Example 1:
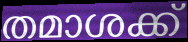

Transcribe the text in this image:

തമാശക്ക്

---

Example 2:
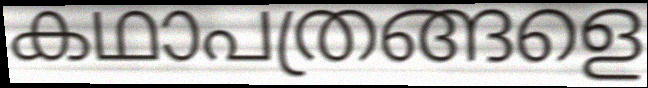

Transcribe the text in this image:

കഥാപത്രങ്ങളെ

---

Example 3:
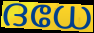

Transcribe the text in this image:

ദധേ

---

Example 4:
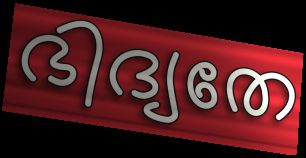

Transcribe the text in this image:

ഭിദ്യതേ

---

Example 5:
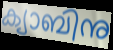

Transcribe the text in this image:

ക്യാബിനു